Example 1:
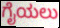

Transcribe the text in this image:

ಗೈಯಲು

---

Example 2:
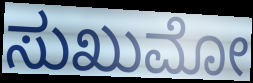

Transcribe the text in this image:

ಸುಖುಮೋ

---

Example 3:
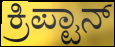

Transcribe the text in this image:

ಕ್ರಿಪ್ಟಾನ್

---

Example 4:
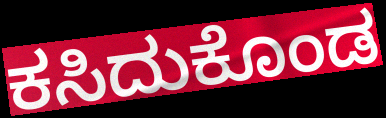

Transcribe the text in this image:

ಕಸಿದುಕೊಂಡ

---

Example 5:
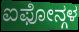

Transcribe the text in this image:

ಐಫೋನ್ಗಳ